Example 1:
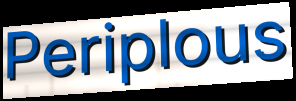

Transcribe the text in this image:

Periplous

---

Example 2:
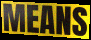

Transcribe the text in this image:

MEANS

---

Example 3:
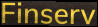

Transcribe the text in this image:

Finserv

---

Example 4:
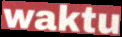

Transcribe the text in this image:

waktu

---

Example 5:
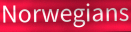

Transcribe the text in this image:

Norwegians